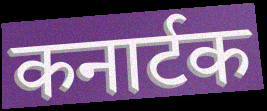
कनार्टक